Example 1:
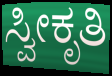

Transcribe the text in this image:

ಸ್ವೀಕೃತಿ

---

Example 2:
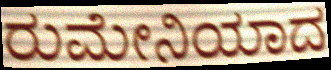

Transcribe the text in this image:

ರುಮೇನಿಯಾದ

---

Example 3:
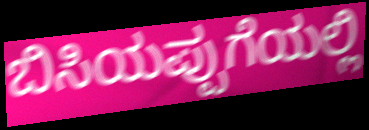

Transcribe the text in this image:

ಬಿಸಿಯಪ್ಪುಗೆಯಲ್ಲಿ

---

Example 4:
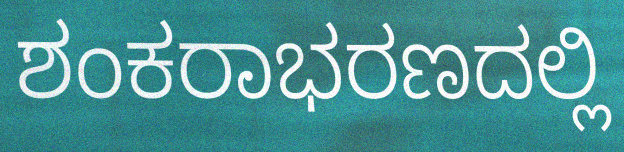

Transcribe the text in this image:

ಶಂಕರಾಭರಣದಲ್ಲಿ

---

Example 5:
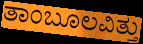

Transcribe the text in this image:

ತಾಂಬೂಲವಿತ್ತು